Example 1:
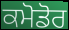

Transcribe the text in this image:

ਕਮੋਡੋਰ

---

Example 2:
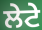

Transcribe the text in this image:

ਲੇਟੇ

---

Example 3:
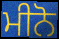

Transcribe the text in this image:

ਮੀਨੋ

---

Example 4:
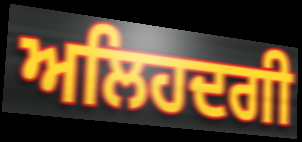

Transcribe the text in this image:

ਅਲਿਹਦਗੀ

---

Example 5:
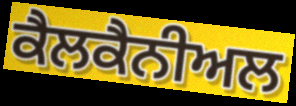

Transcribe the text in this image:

ਕੈਲਕੈਨੀਅਲ